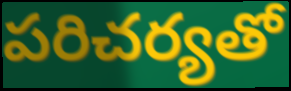
పరిచర్యతో